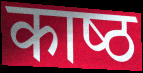
काष्‍ठ